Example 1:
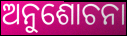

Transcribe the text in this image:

ଅନୁଶୋଚନା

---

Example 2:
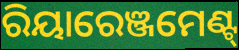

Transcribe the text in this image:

ରିୟାରେଞ୍ଜମେଣ୍ଟ୍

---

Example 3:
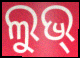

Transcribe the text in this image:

ଲୁଭ୍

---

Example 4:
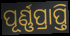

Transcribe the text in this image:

ପୂର୍ଣ୍ଣପ୍ରାପ୍ତି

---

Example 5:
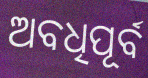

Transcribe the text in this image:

ଅବଧିପୂର୍ବ